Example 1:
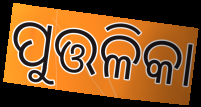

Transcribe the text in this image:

ପୁତ୍ତଳିକା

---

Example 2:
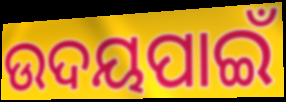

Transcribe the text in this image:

ଉଦୟପାଇଁ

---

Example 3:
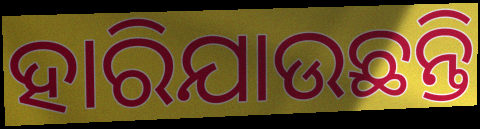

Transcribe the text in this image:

ହାରିଯାଉଛନ୍ତି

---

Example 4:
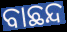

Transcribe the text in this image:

ବାଛନ୍ଦ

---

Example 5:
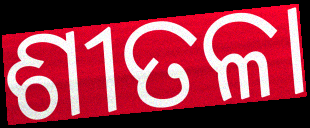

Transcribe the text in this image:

ଶୀତଳା